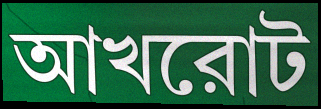
আখরোট